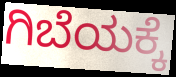
ಗಿಬೆಯಕ್ಕೆ